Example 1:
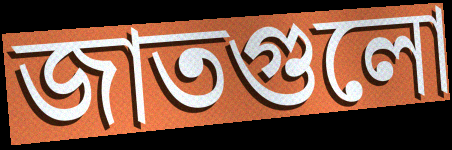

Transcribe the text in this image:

জাতগুলো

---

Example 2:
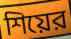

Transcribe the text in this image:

শিয়ের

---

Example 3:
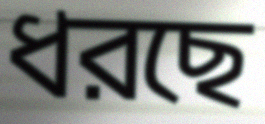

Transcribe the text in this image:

ধরছে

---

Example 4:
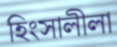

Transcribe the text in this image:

হিংসালীলা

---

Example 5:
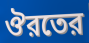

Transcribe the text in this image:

ঔরতের